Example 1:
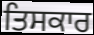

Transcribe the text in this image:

ਤਿਸਕਾਰ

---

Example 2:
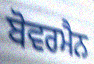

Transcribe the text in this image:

ਬੋਵਰਮੈਨ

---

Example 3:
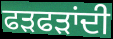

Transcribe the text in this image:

ਫੜਫੜਾਂਦੀ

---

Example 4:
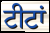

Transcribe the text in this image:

ਟੀਟਾਂ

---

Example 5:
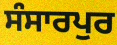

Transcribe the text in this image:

ਸੰਸਾਰਪੁਰ